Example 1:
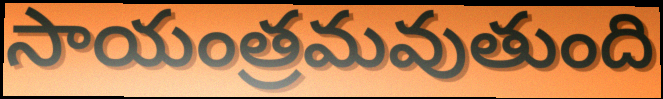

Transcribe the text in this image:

సాయంత్రమవుతుంది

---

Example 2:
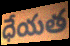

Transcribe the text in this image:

ధేయత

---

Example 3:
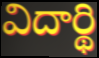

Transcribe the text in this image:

విదార్థి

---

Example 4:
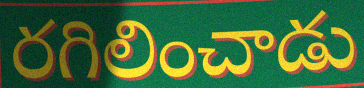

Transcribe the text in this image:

రగిలించాడు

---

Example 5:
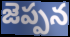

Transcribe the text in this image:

జెప్పన